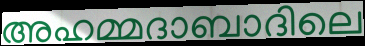
അഹമ്മദാബാദിലെ